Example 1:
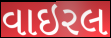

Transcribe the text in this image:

વાઇરલ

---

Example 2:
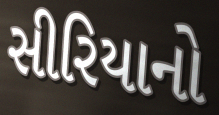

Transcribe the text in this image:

સીરિયાનો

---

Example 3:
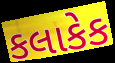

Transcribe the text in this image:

કલાકેક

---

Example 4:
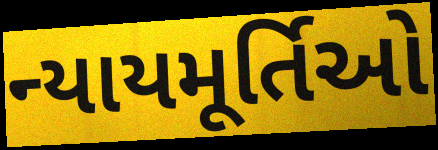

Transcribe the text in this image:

ન્યાયમૂર્તિઓ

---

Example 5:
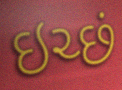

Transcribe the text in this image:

ઇચ્છં